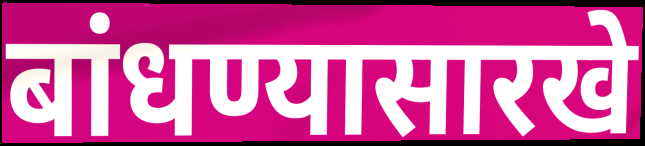
बांधण्यासारखे